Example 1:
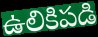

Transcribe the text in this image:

ఉలికిపడి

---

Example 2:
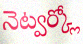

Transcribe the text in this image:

నెట్వర్క్లో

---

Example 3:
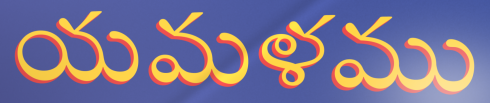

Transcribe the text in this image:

యమళము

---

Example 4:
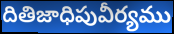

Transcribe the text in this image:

దితిజాధిపువీర్యము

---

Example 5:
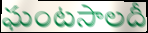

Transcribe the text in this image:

ఘంటసాలదీ